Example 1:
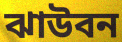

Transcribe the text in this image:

ঝাউবন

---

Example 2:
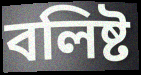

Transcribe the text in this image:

বলিষ্ট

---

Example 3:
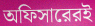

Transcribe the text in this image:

অফিসারেরই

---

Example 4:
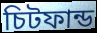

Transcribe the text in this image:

চিটফান্ড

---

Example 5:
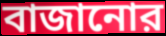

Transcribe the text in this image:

বাজানোর